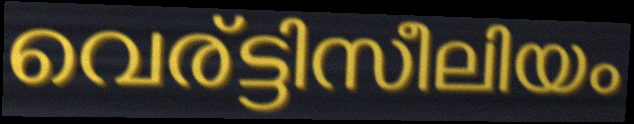
വെര്ട്ടിസീലിയം